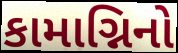
કામાગ્નિનો